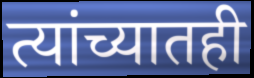
त्यांच्यातही